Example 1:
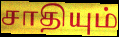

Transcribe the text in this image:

சாதியும்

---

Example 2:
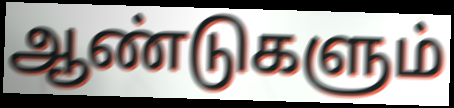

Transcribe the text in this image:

ஆண்டுகளும்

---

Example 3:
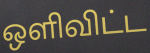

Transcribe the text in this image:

ஒளிவிட்ட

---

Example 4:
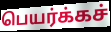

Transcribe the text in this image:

பெயர்க்கச்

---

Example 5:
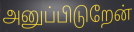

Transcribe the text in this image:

அனுப்பிடுறேன்